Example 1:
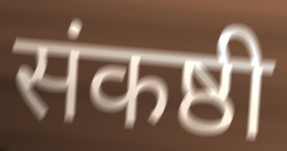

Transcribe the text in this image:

संकष्ठी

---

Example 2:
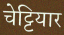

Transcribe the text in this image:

चेट्टियार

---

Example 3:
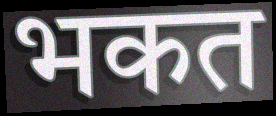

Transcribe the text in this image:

भकत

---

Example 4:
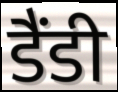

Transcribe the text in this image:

डैंडी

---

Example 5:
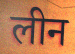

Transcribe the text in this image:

लीन